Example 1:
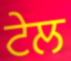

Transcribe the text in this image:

ਟੇਲ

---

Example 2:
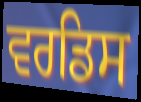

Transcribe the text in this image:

ਵਰਡਿਸ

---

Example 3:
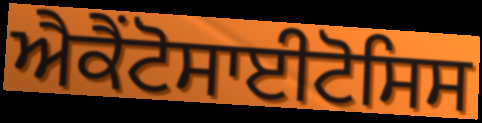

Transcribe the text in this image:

ਐਕੈਂਟੋਸਾਈਟੋਸਿਸ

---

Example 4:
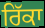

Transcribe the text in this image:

ਰਿੱਕਾ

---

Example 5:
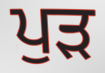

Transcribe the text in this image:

ਪੁੜ